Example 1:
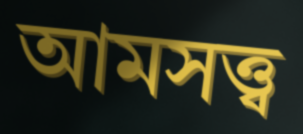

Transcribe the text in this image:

আমসত্ত্ব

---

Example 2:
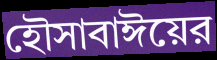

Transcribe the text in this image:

হৌসাবাঈয়ের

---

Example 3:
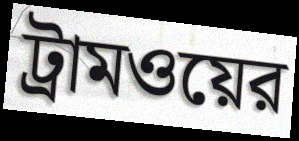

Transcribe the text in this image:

ট্রামওয়ের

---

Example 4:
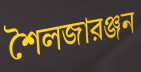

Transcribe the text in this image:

শৈলজারঞ্জন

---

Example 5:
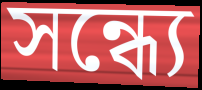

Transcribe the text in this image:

সন্ধ্যে